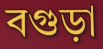
বগুড়া